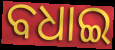
ବଧାଇ